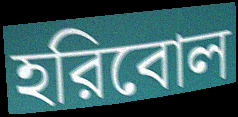
হরিবোল